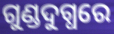
ଗୁଣ୍ଡଦୁଗ୍ଧରେ